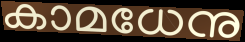
കാമധേനു